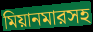
মিয়ানমারসহ